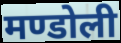
मण्डोली